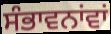
ਸੰਭਾਵਨਾਂਵਾਂ